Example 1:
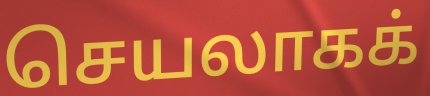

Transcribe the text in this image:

செயலாகக்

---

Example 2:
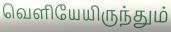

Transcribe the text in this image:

வெளியேயிருந்தும்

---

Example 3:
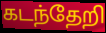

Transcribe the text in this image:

கடந்தேறி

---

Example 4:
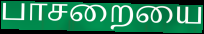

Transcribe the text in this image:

பாசறையை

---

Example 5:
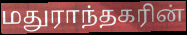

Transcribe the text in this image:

மதுராந்தகரின்